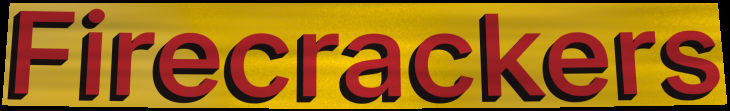
Firecrackers